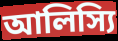
আলিস্যি